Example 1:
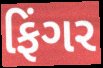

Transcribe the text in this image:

ફિંગર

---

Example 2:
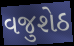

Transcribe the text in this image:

વજુશેઠ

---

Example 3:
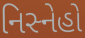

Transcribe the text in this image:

નિસ્નેહો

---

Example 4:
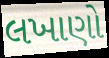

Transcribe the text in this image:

લખાણો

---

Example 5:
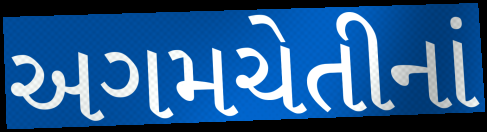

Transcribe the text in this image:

અગમચેતીનાં